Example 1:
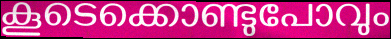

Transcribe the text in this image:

കൂടെക്കൊണ്ടുപോവും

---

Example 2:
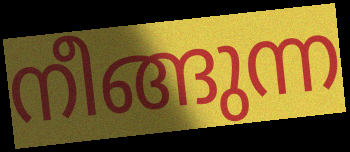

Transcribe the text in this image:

നീങ്ങുന്ന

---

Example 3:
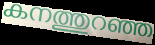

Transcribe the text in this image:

കനത്തുറഞ്ഞ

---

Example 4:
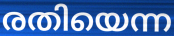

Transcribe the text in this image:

രതിയെന്ന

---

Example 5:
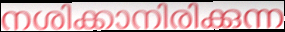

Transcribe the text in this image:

നശിക്കാനിരിക്കുന്ന